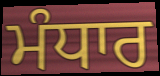
ਮੰਧਾਰ